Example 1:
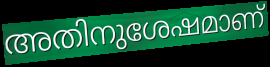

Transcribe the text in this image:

അതിനുശേഷമാണ്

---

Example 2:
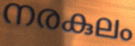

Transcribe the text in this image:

നരകുലം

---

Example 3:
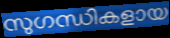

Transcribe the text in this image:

സുഗന്ധികളായ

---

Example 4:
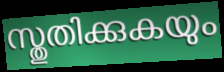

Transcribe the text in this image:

സ്തുതിക്കുകയും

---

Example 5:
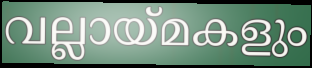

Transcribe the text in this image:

വല്ലായ്മകളും